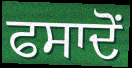
ਫਸਾਦੋਂ